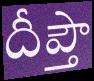
దీప్తౌ